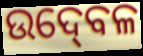
ଉଦ୍‍ବେଳ